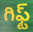
గిఫ్ట్